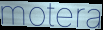
motera